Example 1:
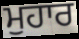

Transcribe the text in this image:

ਮੁਹਾਰ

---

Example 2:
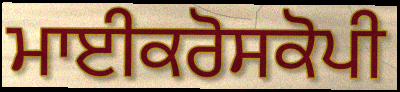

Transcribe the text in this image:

ਮਾਈਕਰੋਸਕੋਪੀ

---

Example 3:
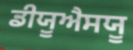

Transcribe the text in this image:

ਡੀਯੂਐਸਯੂ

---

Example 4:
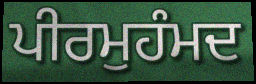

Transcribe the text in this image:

ਪੀਰਮੁਹੰਮਦ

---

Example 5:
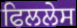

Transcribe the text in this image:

ਫਿਲਲੇਸ